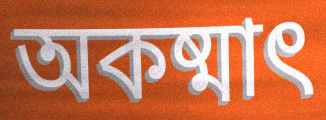
অকষ্মাৎ